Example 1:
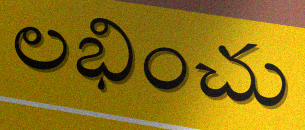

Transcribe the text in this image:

లభించు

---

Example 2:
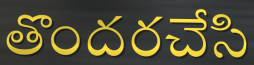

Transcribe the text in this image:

తొందరచేసి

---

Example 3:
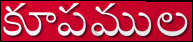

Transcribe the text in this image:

కూపముల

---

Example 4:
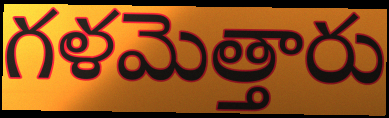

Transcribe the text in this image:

గళమెత్తారు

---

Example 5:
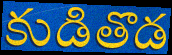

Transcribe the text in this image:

కుడితొడ